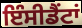
ਇੰਸੀਡੈਂਟਾਂ